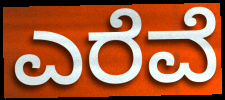
ಎರೆವೆ